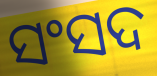
ସଂସଦ